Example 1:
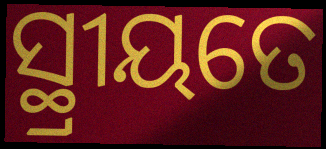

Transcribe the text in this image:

ସ୍ଥ୍ରୀୟତେ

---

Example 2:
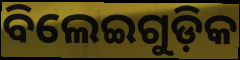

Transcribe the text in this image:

ବିଲେଇଗୁଡ଼ିକ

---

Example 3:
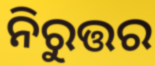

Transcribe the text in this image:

ନିରୁତ୍ତର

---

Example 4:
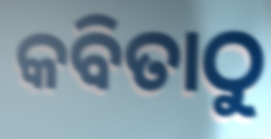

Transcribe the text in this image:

କବିତାଠୁ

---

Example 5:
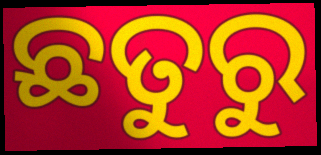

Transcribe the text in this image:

ଛତୁରୁ